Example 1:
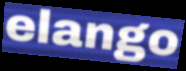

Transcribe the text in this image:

elango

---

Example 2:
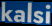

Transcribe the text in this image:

kalsi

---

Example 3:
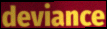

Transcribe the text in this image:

deviance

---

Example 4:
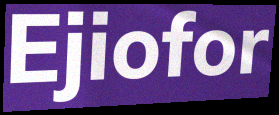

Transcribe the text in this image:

Ejiofor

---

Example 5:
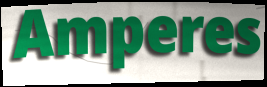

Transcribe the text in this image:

Amperes